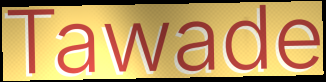
Tawade